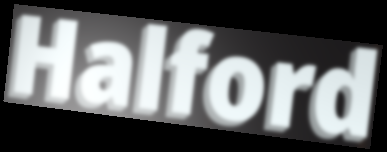
Halford